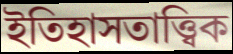
ইতিহাসতাত্ত্বিক